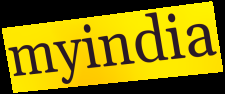
myindia